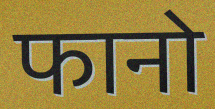
फानो